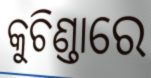
କୁଚିଣ୍ଡାରେ